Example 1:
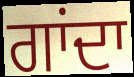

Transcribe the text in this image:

ਗਾਂਦਾ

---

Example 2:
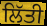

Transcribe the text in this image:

ਲਿੱਤੀ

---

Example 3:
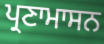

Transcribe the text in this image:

ਪ੍ਰਣਾਮਾਸਨ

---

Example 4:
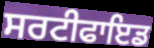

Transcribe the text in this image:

ਸਰਟੀਫਾਇਡ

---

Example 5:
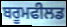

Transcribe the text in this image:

ਬਰੂਮਫੀਲਡ